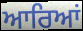
ਆਰਿਆਂ